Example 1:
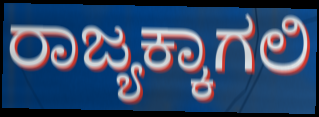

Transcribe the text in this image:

ರಾಜ್ಯಕ್ಕಾಗಲಿ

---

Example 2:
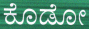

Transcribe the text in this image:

ಕೊಡೋ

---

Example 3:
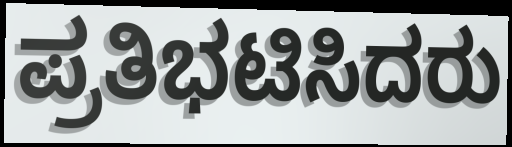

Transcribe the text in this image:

ಪ್ರತಿಭಟಿಸಿದರು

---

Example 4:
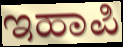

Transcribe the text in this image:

ಇಹಾಪಿ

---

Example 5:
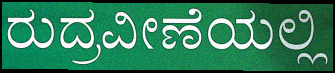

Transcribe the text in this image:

ರುದ್ರವೀಣೆಯಲ್ಲಿ